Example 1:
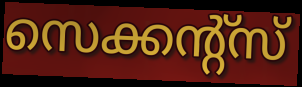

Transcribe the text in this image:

സെക്കന്റ്സ്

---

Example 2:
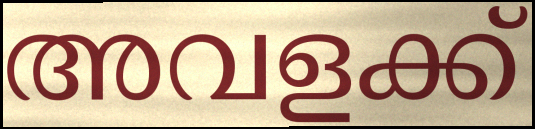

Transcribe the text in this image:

അവളക്ക്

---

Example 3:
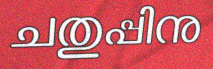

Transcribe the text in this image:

ചതുപ്പിനു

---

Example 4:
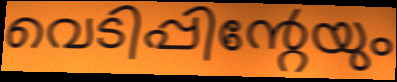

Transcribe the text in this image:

വെടിപ്പിന്റേയും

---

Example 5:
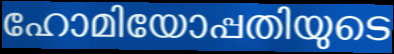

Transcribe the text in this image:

ഹോമിയോപ്പതിയുടെ